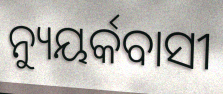
ନ୍ୟୁୟର୍କବାସୀ